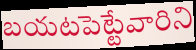
బయటపెట్టేవారిని